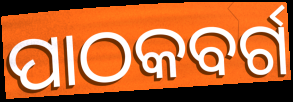
ପାଠକବର୍ଗ